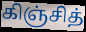
கிஞ்சித்